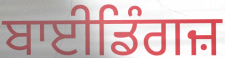
ਬਾਈਡਿੰਗਜ਼